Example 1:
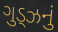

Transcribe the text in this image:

ગુડ્ઝનું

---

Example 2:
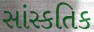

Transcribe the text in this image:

સાંસ્કતિક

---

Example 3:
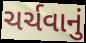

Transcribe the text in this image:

ચર્ચવાનું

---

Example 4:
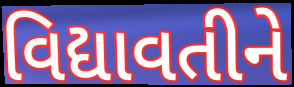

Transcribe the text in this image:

વિદ્યાવતીને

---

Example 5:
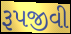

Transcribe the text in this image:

રૂપજીવી